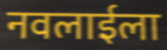
नवलाईला